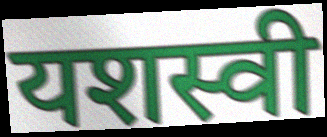
यशस्‍वी